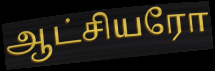
ஆட்சியரோ